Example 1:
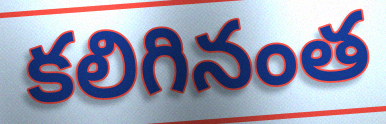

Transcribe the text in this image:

కలిగినంత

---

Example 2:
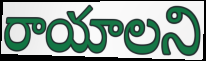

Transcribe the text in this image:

రాయాలని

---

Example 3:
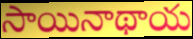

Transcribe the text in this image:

సాయినాథాయ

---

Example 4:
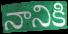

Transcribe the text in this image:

నానికి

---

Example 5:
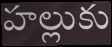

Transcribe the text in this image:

హల్లుకు